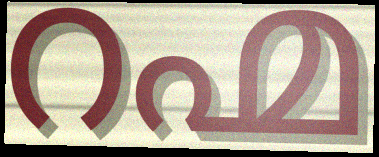
റഹ്മ